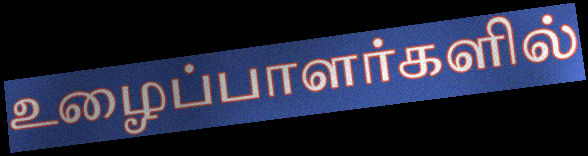
உழைப்பாளர்களில்